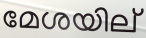
മേശയില്